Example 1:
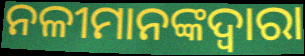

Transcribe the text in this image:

ନଳୀମାନଙ୍କଦ୍ୱାରା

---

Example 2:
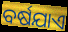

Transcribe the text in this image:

ବର୍ଷଯାଏ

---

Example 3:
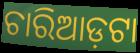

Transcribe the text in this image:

ଚାରିଆଡ଼ଟା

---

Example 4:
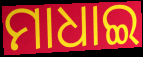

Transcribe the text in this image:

ମାଧାଇ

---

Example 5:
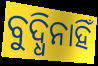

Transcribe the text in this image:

ବୁଦ୍ଧିନାହିଁ